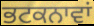
ਭਟਕਨਾਵਾਂ